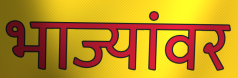
भाज्यांवर